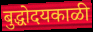
बुद्धोदयकाळी